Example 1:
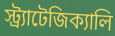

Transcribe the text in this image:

স্ট্র্যাটেজিক্যালি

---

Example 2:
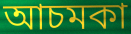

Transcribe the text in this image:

আচমকা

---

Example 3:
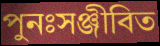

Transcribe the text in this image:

পুনঃসঞ্জীবিত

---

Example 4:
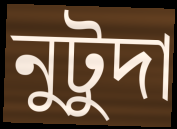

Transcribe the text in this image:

নুটুদা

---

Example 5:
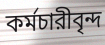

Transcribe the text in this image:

কর্মচারীবৃন্দ